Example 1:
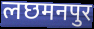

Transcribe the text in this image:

लछमनपुर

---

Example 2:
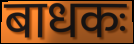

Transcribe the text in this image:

बाधकः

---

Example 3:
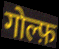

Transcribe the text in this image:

गोल्फ़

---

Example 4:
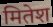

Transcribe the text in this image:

मितेश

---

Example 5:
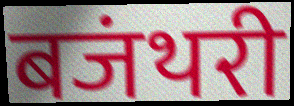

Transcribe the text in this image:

बजंथरी